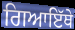
ਗਿਆਇੱਥੇ